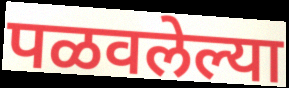
पळवलेल्या